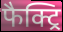
फैक्ट्रि